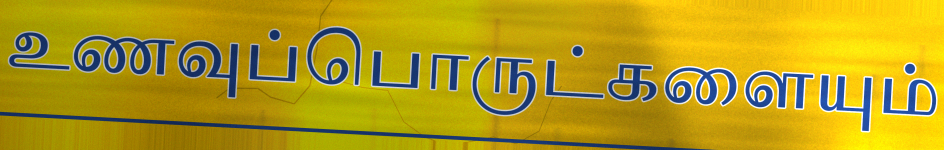
உணவுப்பொருட்களையும்